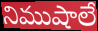
నిముషాలే